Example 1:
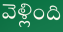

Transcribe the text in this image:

వెళ్లింది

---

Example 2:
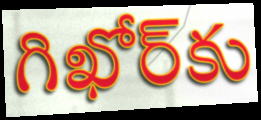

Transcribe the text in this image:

గిఖోర్‌కు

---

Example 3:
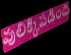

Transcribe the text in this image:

వులిక్కిపడింది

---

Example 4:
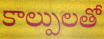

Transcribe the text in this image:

కాల్పులతో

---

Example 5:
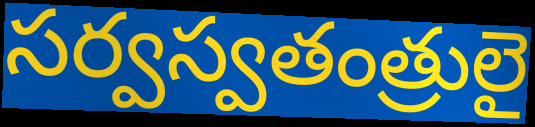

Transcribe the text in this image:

సర్వస్వతంత్రులై